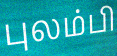
புலம்பி